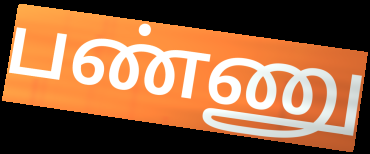
பண்ணு